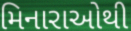
મિનારાઓથી